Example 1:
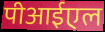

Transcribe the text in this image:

पीआईएल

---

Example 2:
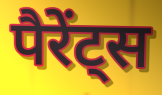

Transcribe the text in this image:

पैरेंट्स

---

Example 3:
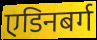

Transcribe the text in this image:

एडिनबर्ग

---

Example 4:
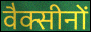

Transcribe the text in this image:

वैक्सीनों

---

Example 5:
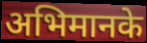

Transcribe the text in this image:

अभिमानके